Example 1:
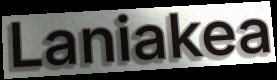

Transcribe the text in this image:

Laniakea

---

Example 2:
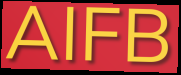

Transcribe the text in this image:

AIFB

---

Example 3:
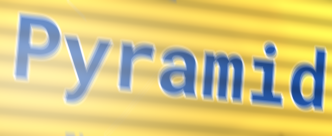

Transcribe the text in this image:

Pyramid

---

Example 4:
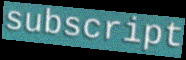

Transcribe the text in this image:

subscript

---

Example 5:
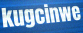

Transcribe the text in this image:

kugcinwe